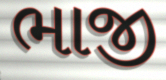
ભાજી